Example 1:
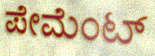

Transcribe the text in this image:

ಪೇಮೆಂಟ್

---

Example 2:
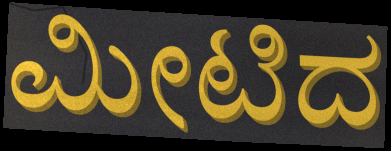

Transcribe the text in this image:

ಮೀಟಿದ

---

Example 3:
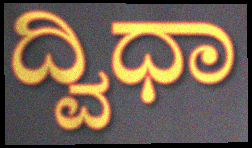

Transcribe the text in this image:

ದ್ವಿಧಾ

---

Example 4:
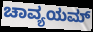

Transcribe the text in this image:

ಚಾವ್ಯಯಮ್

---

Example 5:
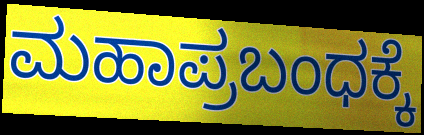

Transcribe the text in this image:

ಮಹಾಪ್ರಬಂಧಕ್ಕೆ